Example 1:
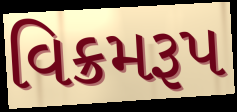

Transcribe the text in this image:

વિક્રમરૂપ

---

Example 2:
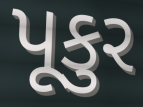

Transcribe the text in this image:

પૂકુર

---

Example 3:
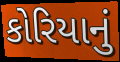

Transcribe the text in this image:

કોરિયાનું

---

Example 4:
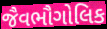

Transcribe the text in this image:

જૈવભૌગોલિક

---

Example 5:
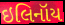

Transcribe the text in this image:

ઇલિનૉય